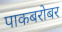
पाकबरोबर